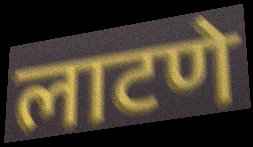
लाटणे